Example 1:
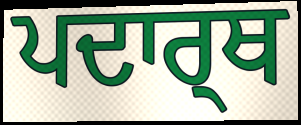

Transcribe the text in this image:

ਪਦਾਰ੍ਥ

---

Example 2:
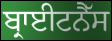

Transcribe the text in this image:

ਬ੍ਰਾਈਟਨੈੱਸ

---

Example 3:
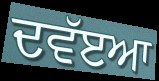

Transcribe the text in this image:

ਦਵੱੲਆ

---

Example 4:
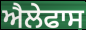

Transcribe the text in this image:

ਐਲੇਫਾਸ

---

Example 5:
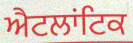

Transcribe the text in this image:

ਐਟਲਾਂਟਿਕ